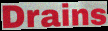
Drains